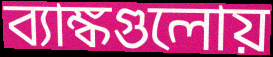
ব্যাঙ্কগুলোয়